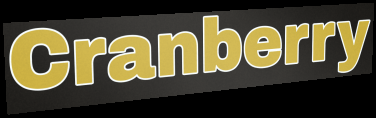
Cranberry